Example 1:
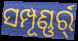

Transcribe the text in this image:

ସମ୍ପୂଣ୍ଣର୍ର୍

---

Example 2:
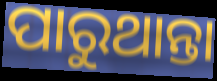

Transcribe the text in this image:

ପାରୁଥାନ୍ତା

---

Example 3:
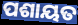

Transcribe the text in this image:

ପଶାୟତ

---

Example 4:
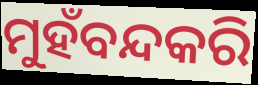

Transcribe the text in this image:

ମୁହଁବନ୍ଦକରି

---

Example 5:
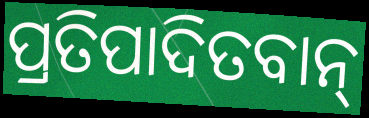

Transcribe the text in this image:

ପ୍ରତିପାଦିତବାନ୍